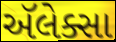
ઍલેક્સા